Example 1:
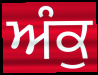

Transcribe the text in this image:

ਅੰਕੁ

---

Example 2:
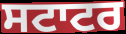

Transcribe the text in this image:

ਸਟਾਟਰ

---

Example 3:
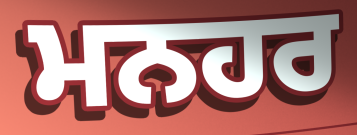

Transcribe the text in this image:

ਮਨਹਰ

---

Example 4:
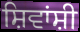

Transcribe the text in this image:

ਸ਼ਿਵਾਂਸ਼ੀ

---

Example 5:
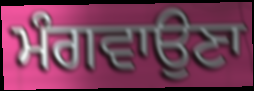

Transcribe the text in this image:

ਮੰਗਵਾਉਣਾ